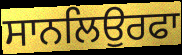
ਸਾਨਲਿਉਰਫਾ